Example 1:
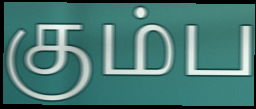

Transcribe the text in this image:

கும்ப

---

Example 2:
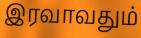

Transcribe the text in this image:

இரவாவதும்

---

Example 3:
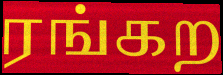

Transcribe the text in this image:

ரங்கற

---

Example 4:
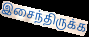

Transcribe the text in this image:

இசைந்திருக்க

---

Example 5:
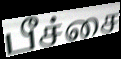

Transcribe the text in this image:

பீச்சை